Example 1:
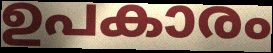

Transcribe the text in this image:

ഉപകാരം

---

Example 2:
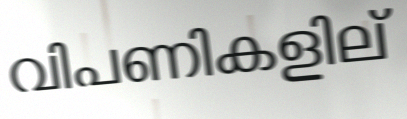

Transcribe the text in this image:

വിപണികളില്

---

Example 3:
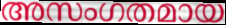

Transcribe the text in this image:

അസംഗതമായ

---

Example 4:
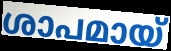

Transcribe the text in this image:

ശാപമായ്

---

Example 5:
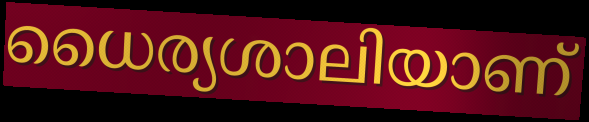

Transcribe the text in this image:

ധൈര്യശാലിയാണ്